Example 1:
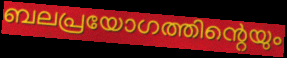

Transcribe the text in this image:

ബലപ്രയോഗത്തിന്റെയും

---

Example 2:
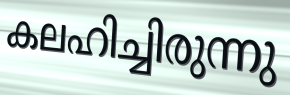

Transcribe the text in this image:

കലഹിച്ചിരുന്നു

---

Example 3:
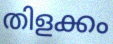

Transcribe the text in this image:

തിളക്കം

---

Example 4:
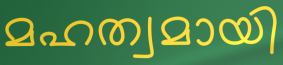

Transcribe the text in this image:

മഹത്വമായി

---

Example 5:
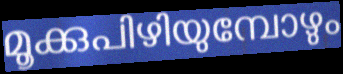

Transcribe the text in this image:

മൂക്കുപിഴിയുമ്പോഴും